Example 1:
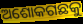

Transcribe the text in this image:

ଅଶୋକଗଛକୁ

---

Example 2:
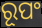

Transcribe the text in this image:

ରୂପଂ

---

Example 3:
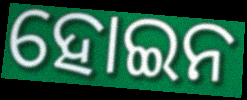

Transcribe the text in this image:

ହୋଇନ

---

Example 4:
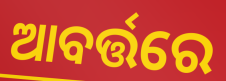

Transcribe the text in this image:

ଆବର୍ତ୍ତରେ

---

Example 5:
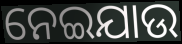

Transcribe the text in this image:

ନେଇଯାଉ